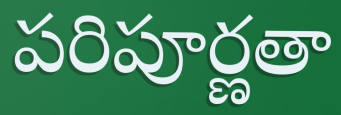
పరిపూర్ణతా